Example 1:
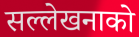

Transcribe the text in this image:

सल्लेखनाको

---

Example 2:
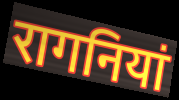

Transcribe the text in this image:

रागनियां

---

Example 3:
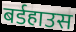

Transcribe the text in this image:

बर्डहाउस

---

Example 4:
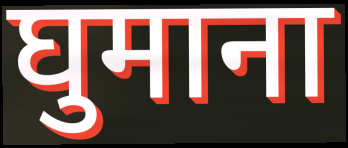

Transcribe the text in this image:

घुमाना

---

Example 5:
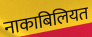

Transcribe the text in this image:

नाकाबिलियत